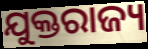
ଯୁକ୍ତରାଜ୍ୟ